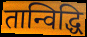
तान्विद्धि